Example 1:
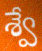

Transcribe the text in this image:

శ్వే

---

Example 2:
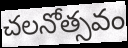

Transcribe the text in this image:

చలనోత్సవం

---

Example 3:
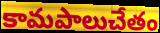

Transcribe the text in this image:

కామపాలుచేతం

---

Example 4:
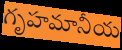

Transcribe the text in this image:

గృహమానీయ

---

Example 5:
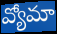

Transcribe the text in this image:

వ్యోమా